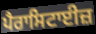
ਪੈਰਾਸਿਟਾਈਜ਼